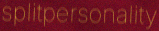
splitpersonality